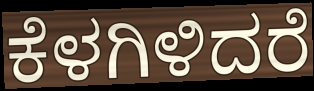
ಕೆಳಗಿಳಿದರೆ